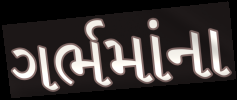
ગર્ભમાંના